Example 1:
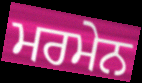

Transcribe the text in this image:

ਮਰਮੇਨ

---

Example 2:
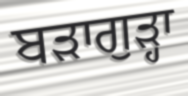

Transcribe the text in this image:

ਬੜਾਗੁੜ੍ਹਾ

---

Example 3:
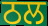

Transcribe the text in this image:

ਠਲ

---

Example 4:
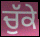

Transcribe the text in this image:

ਚੁੱਕੇ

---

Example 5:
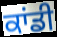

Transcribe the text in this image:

ਕਾਂਡੀ